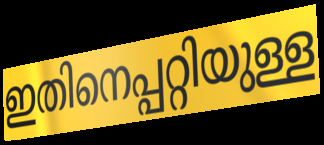
ഇതിനെപ്പറ്റിയുള്ള